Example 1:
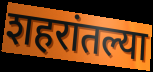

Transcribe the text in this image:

शहरांतल्या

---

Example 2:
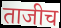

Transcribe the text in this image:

ताजीच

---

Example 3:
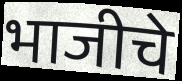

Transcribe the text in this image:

भाजीचे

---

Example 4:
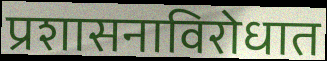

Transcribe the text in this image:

प्रशासनाविरोधात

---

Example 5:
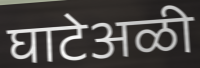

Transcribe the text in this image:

घाटेअळी